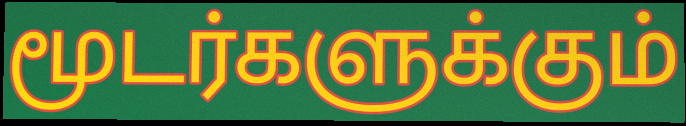
மூடர்களுக்கும்